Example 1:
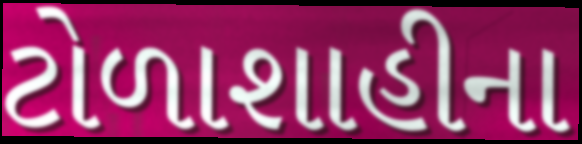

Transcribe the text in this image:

ટોળાશાહીના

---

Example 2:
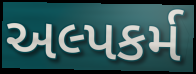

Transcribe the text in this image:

અલ્પકર્મ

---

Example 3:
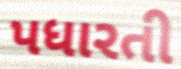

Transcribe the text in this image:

પધારતી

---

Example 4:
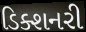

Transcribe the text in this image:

ડિક્શનરી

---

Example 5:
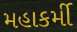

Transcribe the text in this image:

મહાકર્મી